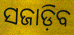
ସଜାଡ଼ିବ